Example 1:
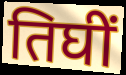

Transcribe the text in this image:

तिघीं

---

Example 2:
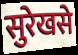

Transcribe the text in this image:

सुरेखसे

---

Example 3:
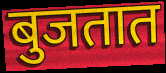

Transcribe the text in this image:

बुजतात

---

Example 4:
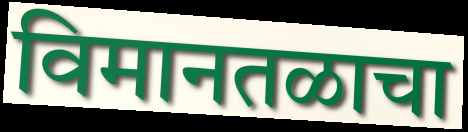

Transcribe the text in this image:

विमानतळाचा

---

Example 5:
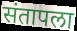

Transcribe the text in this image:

संतापला